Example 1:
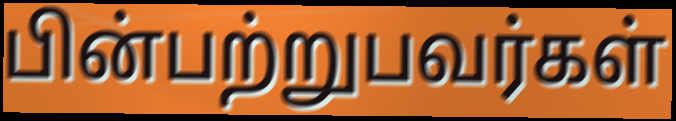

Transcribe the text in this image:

பின்பற்றுபவர்கள்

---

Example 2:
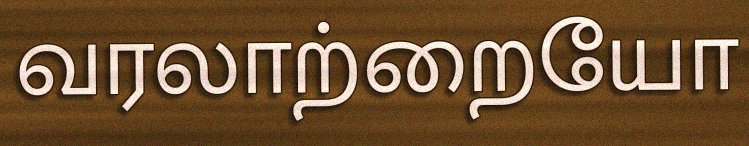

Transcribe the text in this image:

வரலாற்றையோ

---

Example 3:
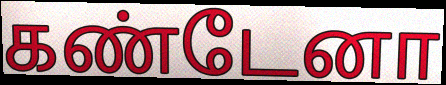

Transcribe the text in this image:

கண்டேனா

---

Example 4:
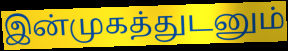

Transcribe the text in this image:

இன்முகத்துடனும்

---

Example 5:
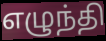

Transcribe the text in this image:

எழுந்தி